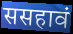
ससहावं